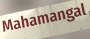
Mahamangal